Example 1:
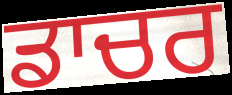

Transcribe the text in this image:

ਡਾਚਰ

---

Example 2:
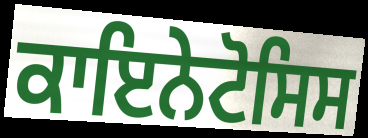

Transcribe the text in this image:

ਕਾਇਨੇਟੋਸਿਸ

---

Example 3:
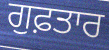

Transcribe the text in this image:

ਗੁਫ਼ਤਾਰ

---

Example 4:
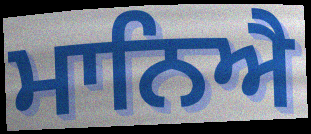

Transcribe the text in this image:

ਮਾਨਿਐ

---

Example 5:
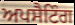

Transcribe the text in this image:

ਅਪਸੈਟਿੰਗ